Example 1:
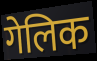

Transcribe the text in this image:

गेलिक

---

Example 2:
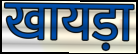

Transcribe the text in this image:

खायड़ा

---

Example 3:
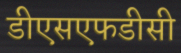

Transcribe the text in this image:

डीएसएफडीसी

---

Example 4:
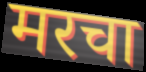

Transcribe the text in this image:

मरचा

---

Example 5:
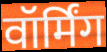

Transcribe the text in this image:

वॉर्मिंग